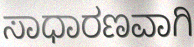
ಸಾಧಾರಣವಾಗಿ